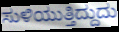
ಸುಳಿಯುತ್ತಿದ್ದುದು